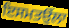
ਇਸਮਤਉੱਲਾ